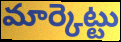
మార్కెట్టు